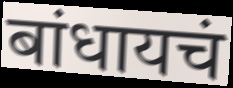
बांधायचं